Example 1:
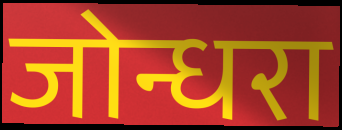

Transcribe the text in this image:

जोन्धरा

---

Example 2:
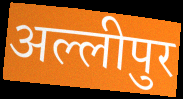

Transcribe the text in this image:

अल्लीपुर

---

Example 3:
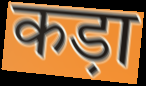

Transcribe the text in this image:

कड़ा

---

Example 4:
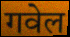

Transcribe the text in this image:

गवेल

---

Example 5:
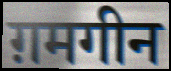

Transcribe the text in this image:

ग़मगीन